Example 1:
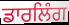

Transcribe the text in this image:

ਡਾਰਲਿੰਗ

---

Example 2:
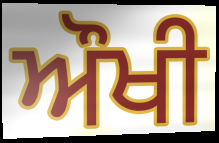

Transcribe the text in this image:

ਔਖੀ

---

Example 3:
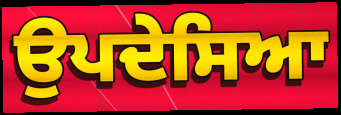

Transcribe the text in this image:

ਉਪਦੇਸਿਆ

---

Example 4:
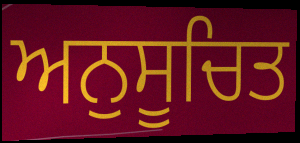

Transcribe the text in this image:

ਅਨੁਸੂਚਿਤ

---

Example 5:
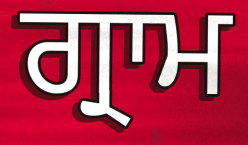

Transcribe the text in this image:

ਗ੍ਰਾਮ